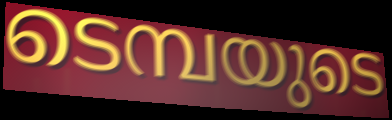
ടെമ്പയുടെ